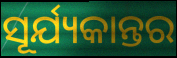
ସୂର୍ଯ୍ୟକାନ୍ତର